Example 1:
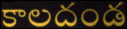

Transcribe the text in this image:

కాలదండ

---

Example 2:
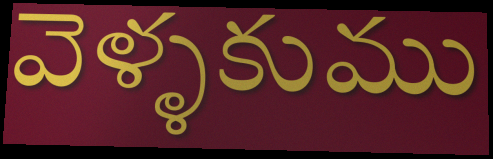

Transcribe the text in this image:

వెళ్ళకుము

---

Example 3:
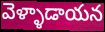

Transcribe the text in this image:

వెళ్ళాడాయన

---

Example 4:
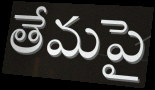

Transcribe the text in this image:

తేమపై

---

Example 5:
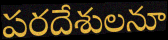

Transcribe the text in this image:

పరదేశులనూ